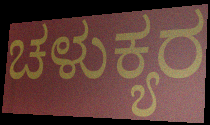
ಚಳುಕ್ಯರ